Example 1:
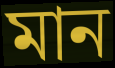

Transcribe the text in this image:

মান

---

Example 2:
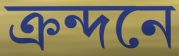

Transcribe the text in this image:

ক্রন্দনে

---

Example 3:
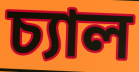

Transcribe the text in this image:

চ্যাল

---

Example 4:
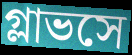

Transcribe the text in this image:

গ্লাভসে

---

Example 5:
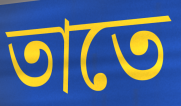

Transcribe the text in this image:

তাতে